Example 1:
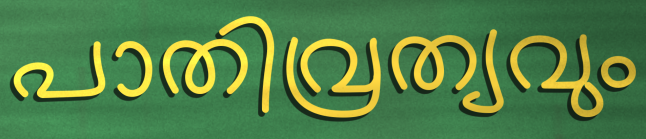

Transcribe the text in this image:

പാതിവ്രത്യവും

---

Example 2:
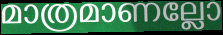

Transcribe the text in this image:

മാത്രമാണല്ലോ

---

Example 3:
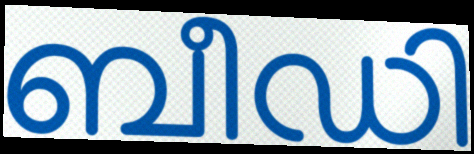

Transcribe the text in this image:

ബീഡി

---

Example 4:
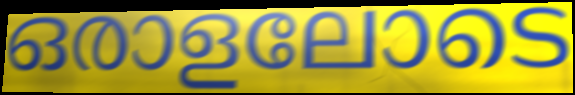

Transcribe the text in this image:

ഒരാളലോടെ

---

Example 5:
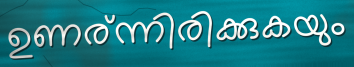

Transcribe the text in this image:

ഉണര്ന്നിരിക്കുകയും